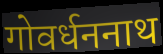
गोवर्धननाथ